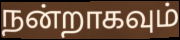
நன்றாகவும்